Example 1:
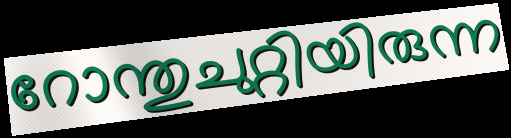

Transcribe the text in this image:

റോന്തുചുറ്റിയിരുന്ന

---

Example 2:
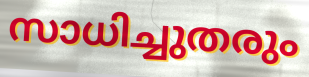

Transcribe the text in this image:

സാധിച്ചുതരും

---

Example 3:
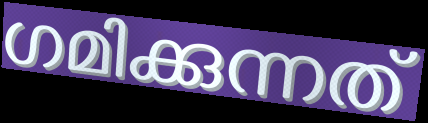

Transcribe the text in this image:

ഗമിക്കുന്നത്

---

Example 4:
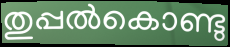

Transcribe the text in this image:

തുപ്പൽകൊണ്ടു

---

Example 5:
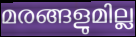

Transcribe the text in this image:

മരങ്ങളുമില്ല